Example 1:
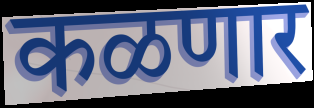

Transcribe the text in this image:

कळणार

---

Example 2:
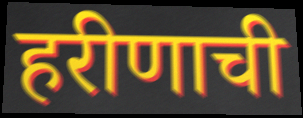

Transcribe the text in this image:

हरीणाची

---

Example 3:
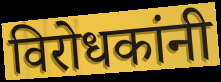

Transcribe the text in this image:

विरोधकांनी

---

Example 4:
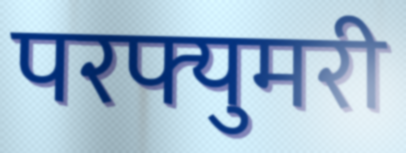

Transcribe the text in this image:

परफ्युमरी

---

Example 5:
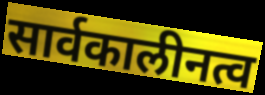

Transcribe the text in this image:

सार्वकालीनत्व